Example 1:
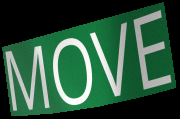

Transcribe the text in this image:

MOVE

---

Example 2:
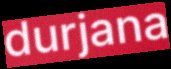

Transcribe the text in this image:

durjana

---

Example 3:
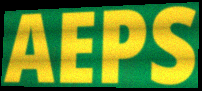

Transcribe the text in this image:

AEPS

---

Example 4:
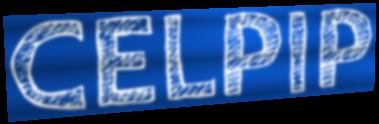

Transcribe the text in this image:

CELPIP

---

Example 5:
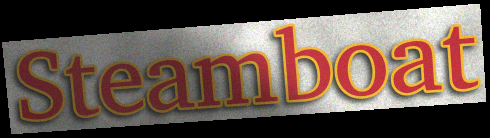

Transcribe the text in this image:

Steamboat